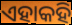
ଏହାକହି